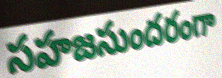
సహజసుందరంగా